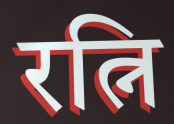
रत्नि